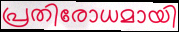
പ്രതിരോധമായി